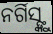
ନର୍ଗିସ୍ଙ୍କୁ